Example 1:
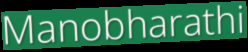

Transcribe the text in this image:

Manobharathi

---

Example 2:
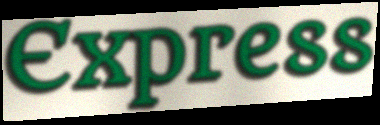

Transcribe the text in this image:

Express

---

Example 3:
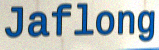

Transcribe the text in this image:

Jaflong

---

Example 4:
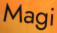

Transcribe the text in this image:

Magi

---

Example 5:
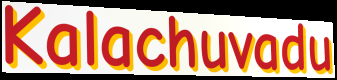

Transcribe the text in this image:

Kalachuvadu